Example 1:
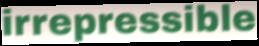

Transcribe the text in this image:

irrepressible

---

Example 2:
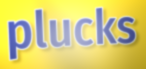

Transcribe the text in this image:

plucks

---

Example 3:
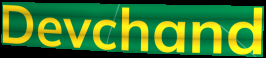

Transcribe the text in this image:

Devchand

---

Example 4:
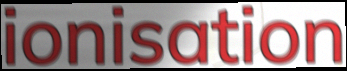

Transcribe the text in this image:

ionisation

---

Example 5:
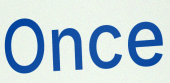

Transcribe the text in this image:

Once